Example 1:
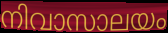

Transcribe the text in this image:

നിവാസാലയം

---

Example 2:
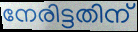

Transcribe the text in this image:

നേരിട്ടതിന്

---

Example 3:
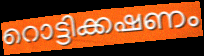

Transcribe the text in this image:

റൊട്ടിക്കഷണം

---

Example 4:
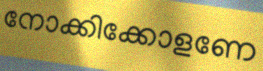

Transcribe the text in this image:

നോക്കിക്കോളണേ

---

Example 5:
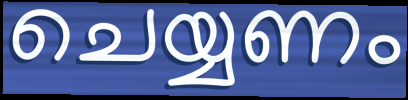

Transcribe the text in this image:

ചെയ്യണം